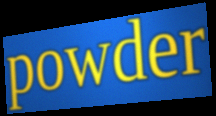
powder